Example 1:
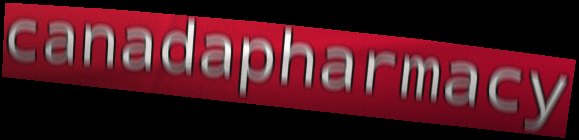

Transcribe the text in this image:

canadapharmacy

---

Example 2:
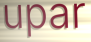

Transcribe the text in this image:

upar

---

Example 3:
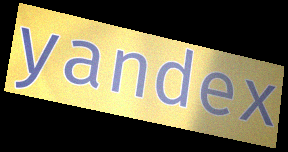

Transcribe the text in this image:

yandex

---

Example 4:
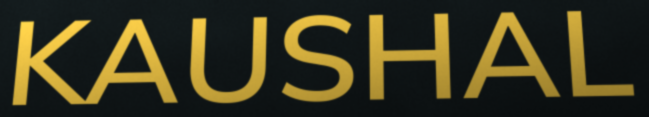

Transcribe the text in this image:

KAUSHAL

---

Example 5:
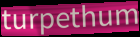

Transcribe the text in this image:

turpethum